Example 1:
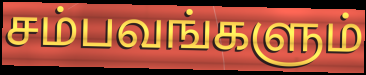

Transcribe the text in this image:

சம்பவங்களும்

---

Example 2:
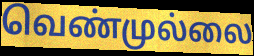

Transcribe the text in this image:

வெண்முல்லை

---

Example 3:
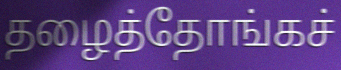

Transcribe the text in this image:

தழைத்தோங்கச்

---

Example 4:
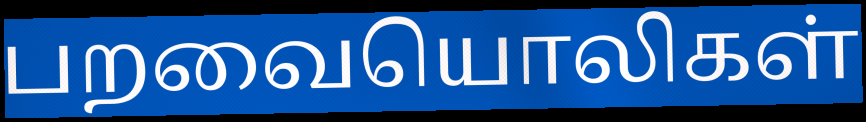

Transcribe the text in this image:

பறவையொலிகள்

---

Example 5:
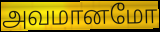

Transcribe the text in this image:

அவமானமோ